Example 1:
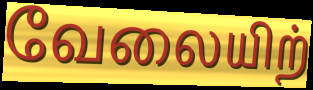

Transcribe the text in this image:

வேலையிற்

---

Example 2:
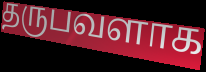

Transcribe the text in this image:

தருபவளாக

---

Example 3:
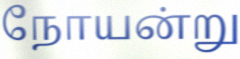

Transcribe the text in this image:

நோயன்று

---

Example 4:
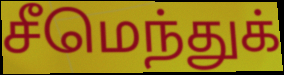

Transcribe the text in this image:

சீமெந்துக்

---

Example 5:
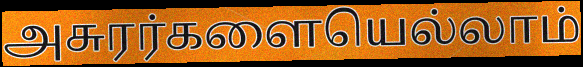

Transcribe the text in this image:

அசுரர்களையெல்லாம்